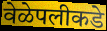
वेळेपलीकडे